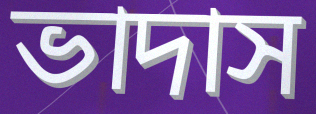
ভাদাস